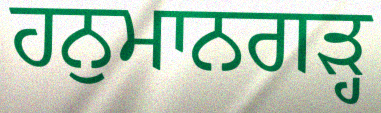
ਹਨੁਮਾਨਗੜ੍ਹ